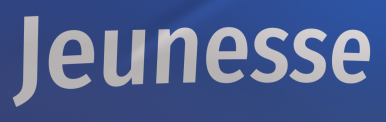
Jeunesse